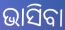
ଭାସିବା